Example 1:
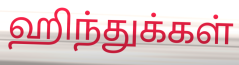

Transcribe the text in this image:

ஹிந்துக்கள்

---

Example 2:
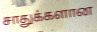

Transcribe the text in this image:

சாதுக்களான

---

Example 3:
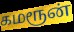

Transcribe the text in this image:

கமரூன்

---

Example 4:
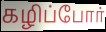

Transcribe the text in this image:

கழிப்போர்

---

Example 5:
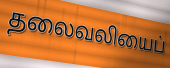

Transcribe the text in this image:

தலைவலியைப்